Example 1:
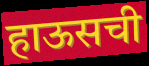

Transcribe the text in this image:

हाऊसची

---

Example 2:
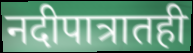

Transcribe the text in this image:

नदीपात्रातही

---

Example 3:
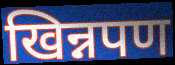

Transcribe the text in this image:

खिन्नपण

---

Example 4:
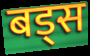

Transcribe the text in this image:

बड्स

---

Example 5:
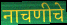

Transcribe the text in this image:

नाचणीचे